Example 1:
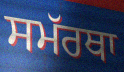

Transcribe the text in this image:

ਸਮੱਰਥਾ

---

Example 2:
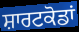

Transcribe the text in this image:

ਸ਼ਾਰਟਕੋਡਾਂ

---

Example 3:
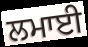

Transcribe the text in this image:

ਲਮਾਈ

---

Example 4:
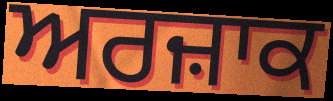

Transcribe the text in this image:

ਅਰਜ਼ਾਕ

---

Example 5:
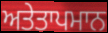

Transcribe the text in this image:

ਅਤੇਤਾਪਮਾਨ